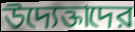
উদ্যেক্তাদের